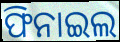
ଫିନାଇଲ